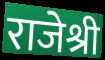
राजेश्री